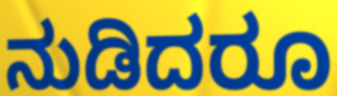
ನುಡಿದರೂ